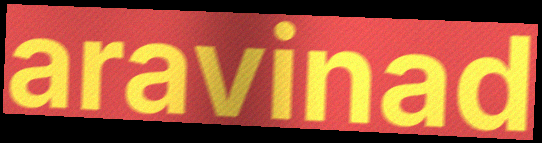
aravinad